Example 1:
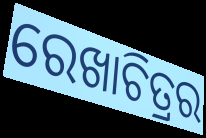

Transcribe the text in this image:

ରେଖାଚିତ୍ରର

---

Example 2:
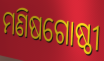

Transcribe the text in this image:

ମଣିଷଗୋଷ୍ଠୀ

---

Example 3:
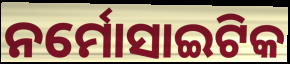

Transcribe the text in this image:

ନର୍ମୋସାଇଟିକ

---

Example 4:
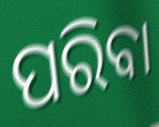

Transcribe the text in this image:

ପରିବା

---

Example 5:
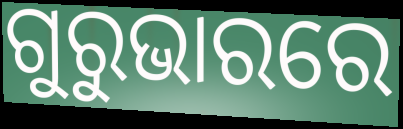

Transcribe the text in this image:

ଗୁରୁଭାରରେ